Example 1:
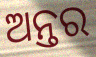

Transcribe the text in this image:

ଅନ୍ତର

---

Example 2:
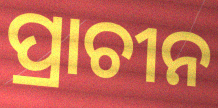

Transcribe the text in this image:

ପ୍ରାଚୀନ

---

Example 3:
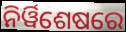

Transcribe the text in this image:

ନିର୍ୱିଶେଷରେ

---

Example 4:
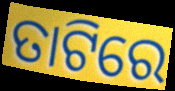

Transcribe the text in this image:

ତାଟିରେ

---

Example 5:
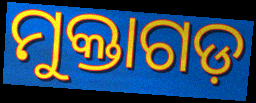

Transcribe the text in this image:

ମୁକ୍ତାଗଡ଼